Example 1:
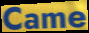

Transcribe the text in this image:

Came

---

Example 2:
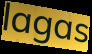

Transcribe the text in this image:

lagas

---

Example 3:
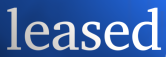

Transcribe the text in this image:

leased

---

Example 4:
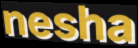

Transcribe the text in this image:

nesha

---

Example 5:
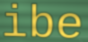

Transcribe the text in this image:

ibe